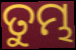
ତୁମ୍ଭ